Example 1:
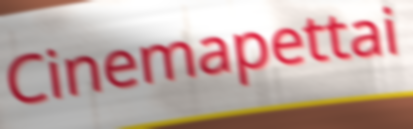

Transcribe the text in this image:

Cinemapettai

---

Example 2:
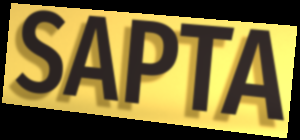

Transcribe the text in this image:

SAPTA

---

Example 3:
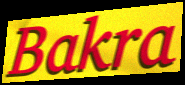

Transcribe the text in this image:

Bakra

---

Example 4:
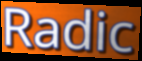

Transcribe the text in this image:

Radic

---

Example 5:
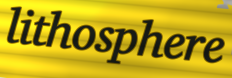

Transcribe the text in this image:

lithosphere